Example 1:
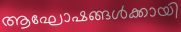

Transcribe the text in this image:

ആഘോഷങ്ങൾക്കായി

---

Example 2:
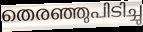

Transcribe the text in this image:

തെരഞ്ഞുപിടിച്ചു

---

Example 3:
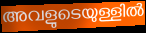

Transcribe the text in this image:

അവളുടെയുള്ളിൽ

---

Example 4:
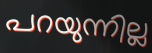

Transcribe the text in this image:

പറയുന്നില്ല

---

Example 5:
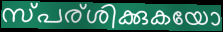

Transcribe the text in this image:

സ്പര്ശിക്കുകയോ